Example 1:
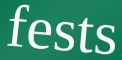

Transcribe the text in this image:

fests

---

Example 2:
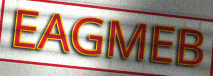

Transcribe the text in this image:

EAGMEB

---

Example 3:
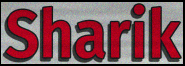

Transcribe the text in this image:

Sharik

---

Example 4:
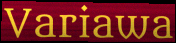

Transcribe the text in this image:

Variawa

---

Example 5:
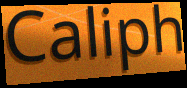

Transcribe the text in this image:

Caliph